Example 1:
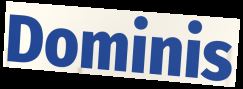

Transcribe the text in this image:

Dominis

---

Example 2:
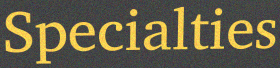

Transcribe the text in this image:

Specialties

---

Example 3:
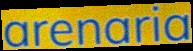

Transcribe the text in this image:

arenaria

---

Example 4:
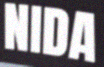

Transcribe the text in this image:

NIDA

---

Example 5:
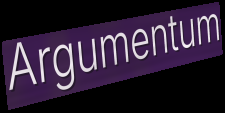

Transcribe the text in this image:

Argumentum